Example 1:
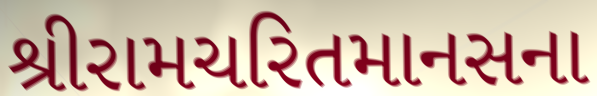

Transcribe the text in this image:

શ્રીરામચરિતમાનસના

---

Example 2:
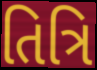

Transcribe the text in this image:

તિત્રિ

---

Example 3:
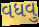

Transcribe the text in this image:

વધવુ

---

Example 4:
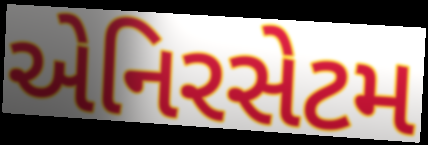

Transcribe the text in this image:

એનિરસેટમ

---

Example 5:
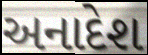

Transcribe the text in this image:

અનાદેશ